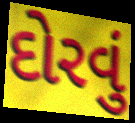
દોરવું